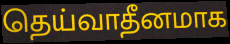
தெய்வாதீனமாக